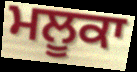
ਮਲੂਕਾ